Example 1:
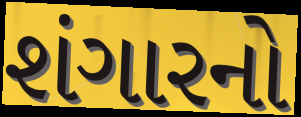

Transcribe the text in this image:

શંગારનો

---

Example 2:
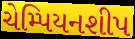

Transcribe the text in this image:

ચેમ્પિયનશીપ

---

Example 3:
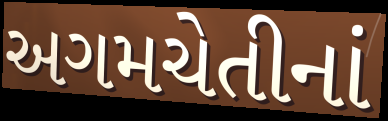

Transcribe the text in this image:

અગમચેતીનાં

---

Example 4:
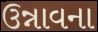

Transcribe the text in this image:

ઉન્નાવના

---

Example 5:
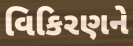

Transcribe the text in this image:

વિકિરણને